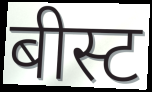
बीस्ट